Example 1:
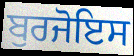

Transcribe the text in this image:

ਬੁਰਜੋਇਸ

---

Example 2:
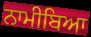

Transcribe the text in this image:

ਨਾਮੀਬਿਆ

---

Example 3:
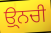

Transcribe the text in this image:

ਉ੍ਨਚੀ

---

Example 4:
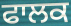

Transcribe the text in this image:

ਫਾਲਕ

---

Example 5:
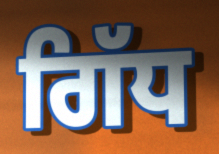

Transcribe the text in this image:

ਗਿੱਧ